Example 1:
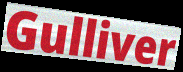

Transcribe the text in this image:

Gulliver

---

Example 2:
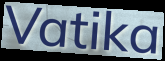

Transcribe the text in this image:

Vatika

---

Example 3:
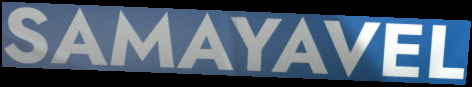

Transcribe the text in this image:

SAMAYAVEL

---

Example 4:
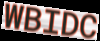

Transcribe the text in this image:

WBIDC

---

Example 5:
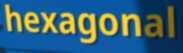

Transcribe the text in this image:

hexagonal